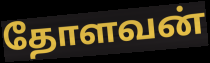
தோளவன்